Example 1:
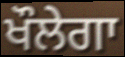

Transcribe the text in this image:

ਖੌਲੇਗਾ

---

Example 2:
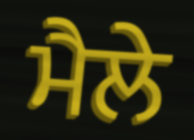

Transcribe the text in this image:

ਮੈਲੇ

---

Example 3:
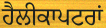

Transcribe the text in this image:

ਹੈਲੀਕਾਪਟਰਾਂ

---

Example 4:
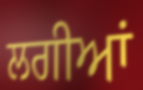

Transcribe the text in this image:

ਲਗੀਆਂ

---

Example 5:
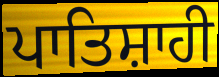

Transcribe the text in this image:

ਪਾਤਿਸ਼ਾਹੀ